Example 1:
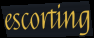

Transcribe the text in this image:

escorting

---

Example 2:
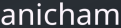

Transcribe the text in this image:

anicham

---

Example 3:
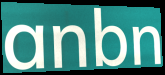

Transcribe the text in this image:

anbn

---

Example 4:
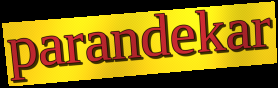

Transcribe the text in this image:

parandekar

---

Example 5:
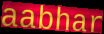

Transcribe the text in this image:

aabhar